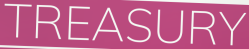
TREASURY